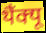
थैंक्यू